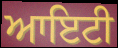
ਆਇਟੀ